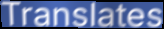
Translates